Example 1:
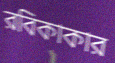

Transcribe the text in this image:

রবিকাকার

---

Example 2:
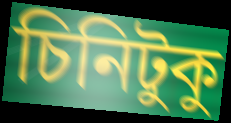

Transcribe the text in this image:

চিনিটুকু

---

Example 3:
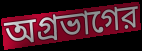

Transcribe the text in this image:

অগ্রভাগের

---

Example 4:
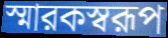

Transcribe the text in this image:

স্মারকস্বরূপ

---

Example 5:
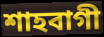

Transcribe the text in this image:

শাহবাগী